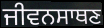
ਜੀਵਨਸਾਥਣ